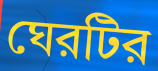
ঘেরটির